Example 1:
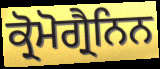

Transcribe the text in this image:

ਕ੍ਰੋਮੋਗ੍ਰੈਨਿਨ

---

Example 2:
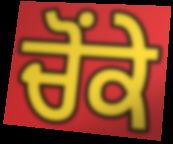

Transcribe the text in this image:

ਚੋਂਕੇ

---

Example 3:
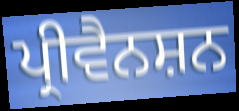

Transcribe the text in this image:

ਪ੍ਰੀਵੈਨਸ਼ਨ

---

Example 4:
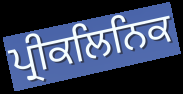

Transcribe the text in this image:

ਪ੍ਰੀਕਲਿਨਿਕ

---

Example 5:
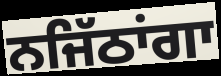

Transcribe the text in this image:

ਨਜਿੱਠਾਂਗਾ